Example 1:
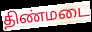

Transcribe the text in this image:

திண்மடை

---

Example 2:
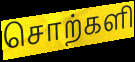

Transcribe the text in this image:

சொற்களி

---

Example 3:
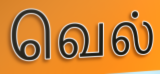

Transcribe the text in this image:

வெல்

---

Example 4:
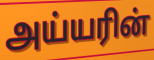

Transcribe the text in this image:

அய்யரின்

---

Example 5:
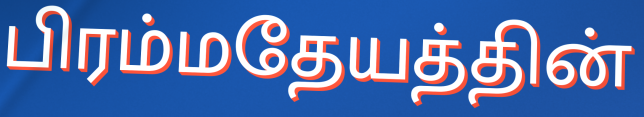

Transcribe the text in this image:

பிரம்மதேயத்தின்